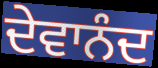
ਦੇਵਾਨੰਦ